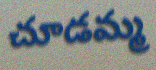
చూడమ్మ